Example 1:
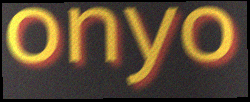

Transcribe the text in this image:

onyo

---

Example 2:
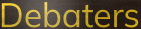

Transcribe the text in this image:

Debaters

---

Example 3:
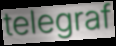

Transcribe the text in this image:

telegraf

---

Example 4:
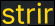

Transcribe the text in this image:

strir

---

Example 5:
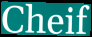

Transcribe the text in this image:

Cheif